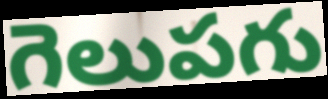
గెలుపగు